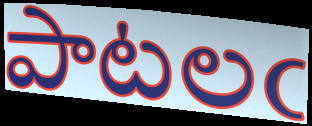
పాటలఁ